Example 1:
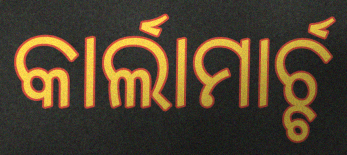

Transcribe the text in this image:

କାର୍ଲାମାର୍ଚ୍ଚ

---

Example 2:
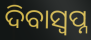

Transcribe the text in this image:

ଦିବାସ୍ଵପ୍ନ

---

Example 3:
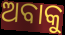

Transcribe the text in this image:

ଅବାକୁ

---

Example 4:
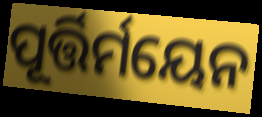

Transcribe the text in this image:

ପୂର୍ତ୍ତିର୍ମୟେନ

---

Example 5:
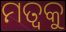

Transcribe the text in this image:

ମତ୍ୱକୁ